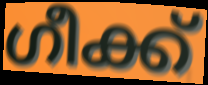
ഗീക്ക്